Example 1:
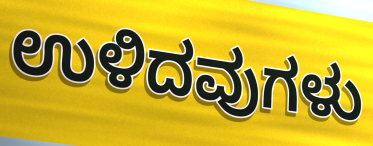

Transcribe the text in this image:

ಉಳಿದವುಗಳು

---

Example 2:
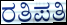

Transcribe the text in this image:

ರತಿಪತಿ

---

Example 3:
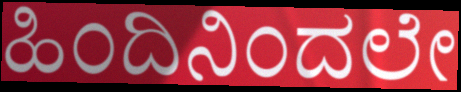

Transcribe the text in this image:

ಹಿಂದಿನಿಂದಲೇ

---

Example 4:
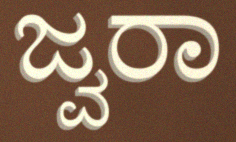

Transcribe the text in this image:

ಜ್ವರಾ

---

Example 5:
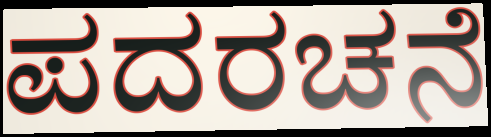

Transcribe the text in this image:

ಪದರಚನೆ